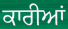
ਕਾਰੀਆਂ